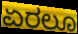
ಏರಲೂ